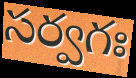
సర్వగః